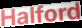
Halford